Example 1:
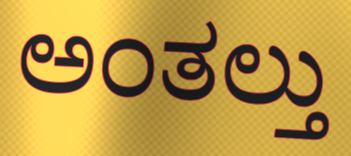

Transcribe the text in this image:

ಅಂತಲ್ತು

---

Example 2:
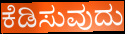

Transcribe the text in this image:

ಕೆಡಿಸುವುದು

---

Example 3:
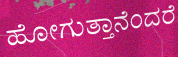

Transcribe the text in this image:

ಹೋಗುತ್ತಾನೆಂದರೆ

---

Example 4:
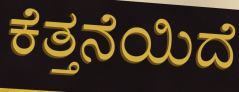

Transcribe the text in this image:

ಕೆತ್ತನೆಯಿದೆ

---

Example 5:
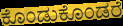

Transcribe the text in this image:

ಕೊಂಡುಕೊಂಡರೆ